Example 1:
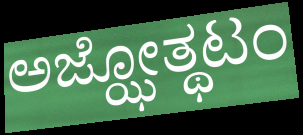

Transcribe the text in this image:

ಅಜ್ಝೋತ್ಥಟಂ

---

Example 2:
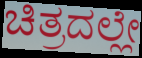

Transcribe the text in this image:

ಚಿತ್ರದಲ್ಲೇ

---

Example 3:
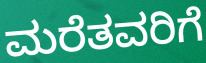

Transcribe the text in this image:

ಮರೆತವರಿಗೆ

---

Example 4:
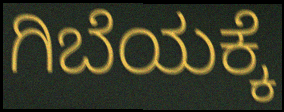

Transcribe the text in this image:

ಗಿಬೆಯಕ್ಕೆ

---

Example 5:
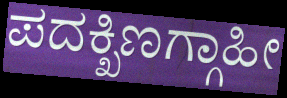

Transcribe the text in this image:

ಪದಕ್ಖಿಣಗ್ಗಾಹೀ